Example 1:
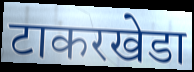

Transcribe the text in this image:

टाकरखेडा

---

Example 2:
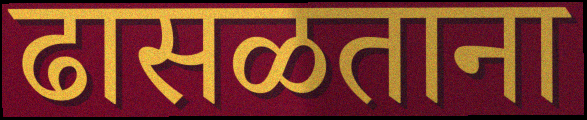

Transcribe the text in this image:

ढासळताना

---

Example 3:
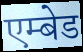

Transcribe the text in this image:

एम्बेड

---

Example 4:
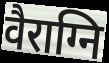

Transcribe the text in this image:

वैराग्नि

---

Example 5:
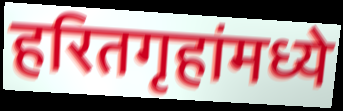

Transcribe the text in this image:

हरितगृहांमध्ये